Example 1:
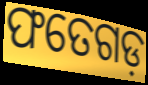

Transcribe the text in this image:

ଫତେଗଡ଼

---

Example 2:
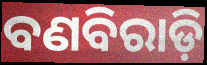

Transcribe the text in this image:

ବଣବିରାଡ଼ି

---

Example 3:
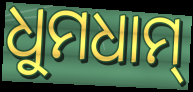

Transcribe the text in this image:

ଧୁମଧାମ୍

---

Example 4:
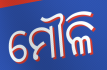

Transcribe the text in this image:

ମୌଳି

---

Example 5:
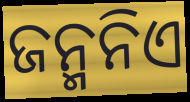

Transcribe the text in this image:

ଜନ୍ମନିଏ